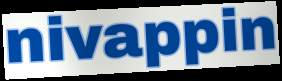
nivappin